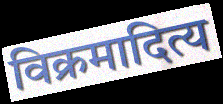
विक्रमादित्य